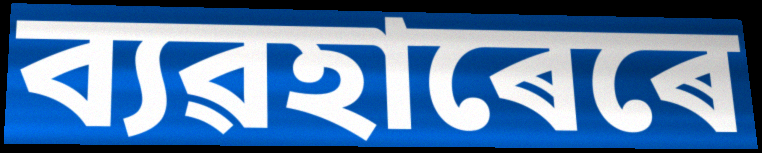
ব্যৱহাৰেৰে